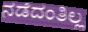
ನಡೆದಂತಿಲ್ಲ